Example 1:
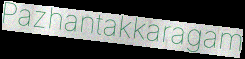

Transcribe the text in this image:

Pazhantakkaragam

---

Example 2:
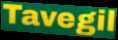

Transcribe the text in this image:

Tavegil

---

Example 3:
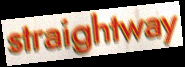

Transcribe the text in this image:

straightway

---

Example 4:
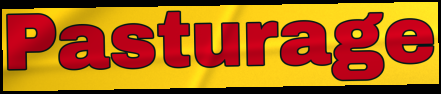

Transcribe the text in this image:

Pasturage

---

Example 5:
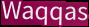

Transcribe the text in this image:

Waqqas